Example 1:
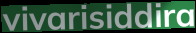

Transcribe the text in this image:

vivarisiddira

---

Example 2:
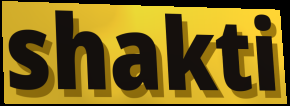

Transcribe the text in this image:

shakti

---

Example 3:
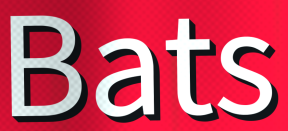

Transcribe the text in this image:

Bats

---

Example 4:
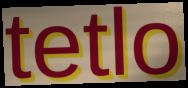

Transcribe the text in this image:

tetlo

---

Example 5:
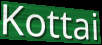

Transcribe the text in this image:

Kottai